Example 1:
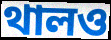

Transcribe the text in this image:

থালও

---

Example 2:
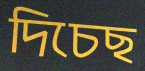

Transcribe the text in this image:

দিচেছ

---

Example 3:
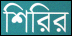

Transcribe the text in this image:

শিরির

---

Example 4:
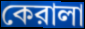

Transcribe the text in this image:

কেরালা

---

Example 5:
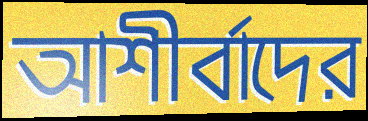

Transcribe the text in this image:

আশীর্বাদের